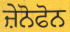
ਜ਼ੇਨੋਫੋਨ